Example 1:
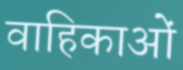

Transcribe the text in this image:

वाहिकाओं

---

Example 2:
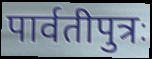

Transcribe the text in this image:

पार्वतीपुत्रः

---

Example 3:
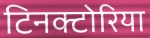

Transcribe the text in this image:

टिनक्टोरिया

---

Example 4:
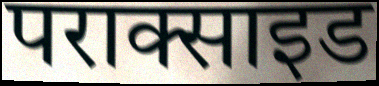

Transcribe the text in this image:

पराक्साइड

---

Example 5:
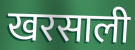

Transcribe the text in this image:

खरसाली